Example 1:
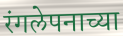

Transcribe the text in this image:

रंगलेपनाच्या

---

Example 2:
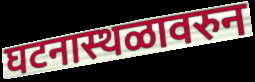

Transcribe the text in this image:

घटनास्थळावरुन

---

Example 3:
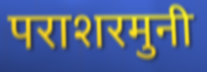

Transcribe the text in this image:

पराशरमुनी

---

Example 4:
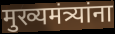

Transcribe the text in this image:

मुख्यमंत्र्यांना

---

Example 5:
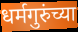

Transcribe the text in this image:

धर्मगुरुंच्या